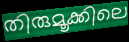
തിരുമൂക്കിലെ